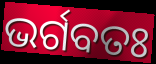
ଭର୍ଗବତଃ